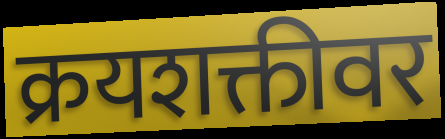
क्रयशक्तीवर